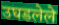
उघडलेले